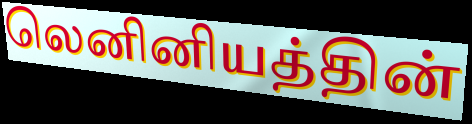
லெனினியத்தின்